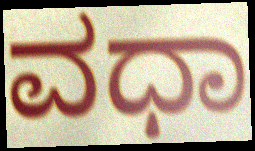
ವಧಾ